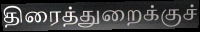
திரைத்துறைக்குச்